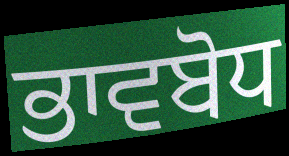
ਭਾਵਬੋਧ